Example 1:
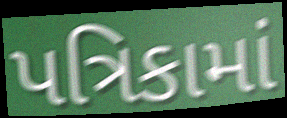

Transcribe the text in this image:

પત્રિકામાં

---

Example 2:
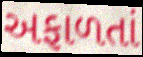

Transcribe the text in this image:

અફાળતાં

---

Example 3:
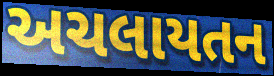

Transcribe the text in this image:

અચલાયતન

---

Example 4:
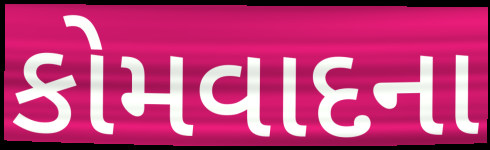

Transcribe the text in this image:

કોમવાદના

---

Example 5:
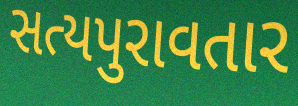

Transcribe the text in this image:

સત્યપુરાવતાર